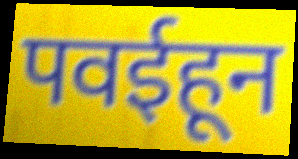
पवईहून